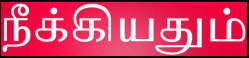
நீக்கியதும்